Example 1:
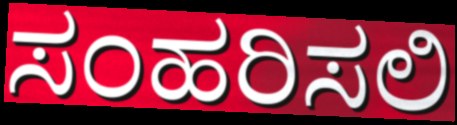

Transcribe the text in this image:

ಸಂಹರಿಸಲಿ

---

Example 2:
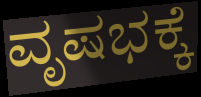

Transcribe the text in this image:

ವೃಷಭಕ್ಕೆ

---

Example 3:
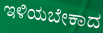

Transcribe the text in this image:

ಇಳಿಯಬೇಕಾದ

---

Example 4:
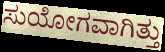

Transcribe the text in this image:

ಸುಯೋಗವಾಗಿತ್ತು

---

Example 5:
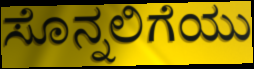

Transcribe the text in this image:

ಸೊನ್ನಲಿಗೆಯು